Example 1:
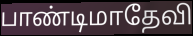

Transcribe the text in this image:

பாண்டிமாதேவி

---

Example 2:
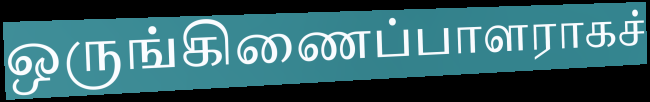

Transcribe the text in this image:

ஒருங்கிணைப்பாளராகச்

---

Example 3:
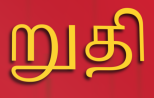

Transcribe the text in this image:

றுதி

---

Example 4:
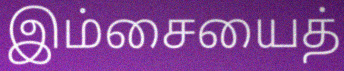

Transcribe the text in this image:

இம்சையைத்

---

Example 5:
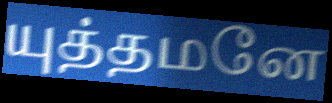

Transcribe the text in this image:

யுத்தமனே